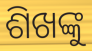
ଶିଖଙ୍କୁ